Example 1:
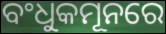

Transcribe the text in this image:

ବଂଧୁକମୂନରେ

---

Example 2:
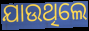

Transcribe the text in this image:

ଯାଉଥିଲେ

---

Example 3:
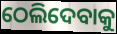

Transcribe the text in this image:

ଠେଲିଦେବାକୁ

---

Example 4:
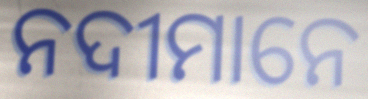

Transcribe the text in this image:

ନଦୀମାନେ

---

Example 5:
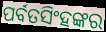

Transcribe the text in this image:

ପର୍ବତସିଂହଙ୍କର